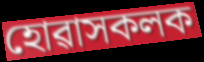
হোৱাসকলক